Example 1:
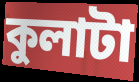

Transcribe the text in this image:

কুলাটা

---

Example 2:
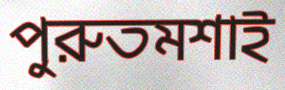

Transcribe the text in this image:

পুরুতমশাই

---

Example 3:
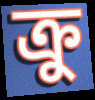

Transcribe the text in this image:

ক্রু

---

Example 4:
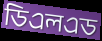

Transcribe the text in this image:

ডিএলএড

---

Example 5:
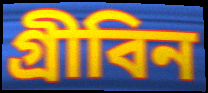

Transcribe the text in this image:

গ্রীবিন